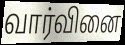
வார்வினை